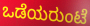
ಒಡೆಯರುಂಟೆ